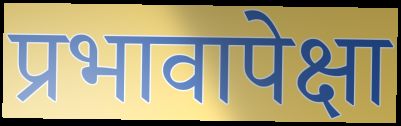
प्रभावापेक्षा